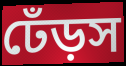
ঢেঁড়স